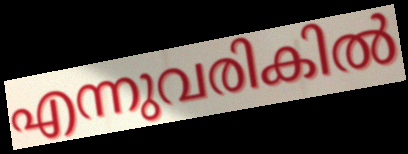
എന്നുവരികിൽ